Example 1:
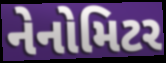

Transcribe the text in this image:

નેનોમિટર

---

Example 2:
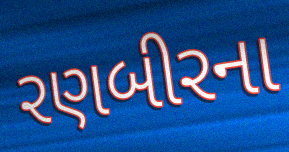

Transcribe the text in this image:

રણબીરના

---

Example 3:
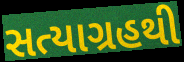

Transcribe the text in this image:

સત્યાગ્રહથી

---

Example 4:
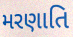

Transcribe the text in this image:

મરણાતિ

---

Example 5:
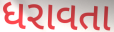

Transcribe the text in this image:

ધરાવતા